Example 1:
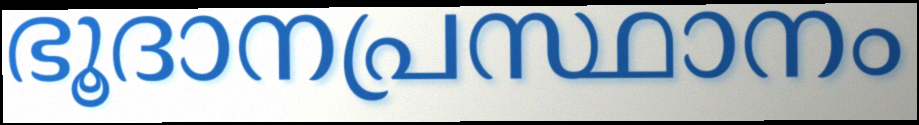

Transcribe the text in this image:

ഭൂദാനപ്രസ്ഥാനം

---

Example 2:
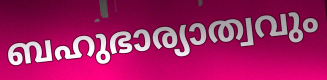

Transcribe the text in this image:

ബഹുഭാര്യാത്വവും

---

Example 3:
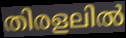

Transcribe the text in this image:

തിരളലിൽ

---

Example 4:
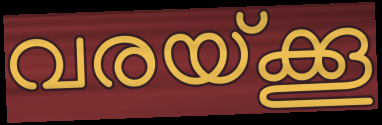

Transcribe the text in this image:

വരയ്ക്കൂ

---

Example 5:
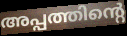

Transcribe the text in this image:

അപ്പത്തിന്റെ